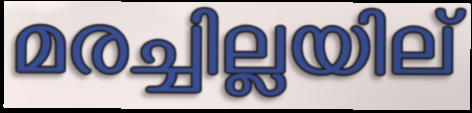
മരച്ചില്ലയില്